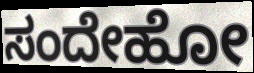
ಸಂದೇಹೋ